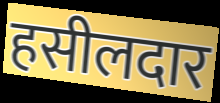
हसीलदार